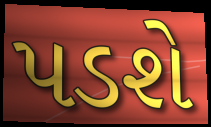
પડશે